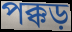
পক্কড়